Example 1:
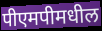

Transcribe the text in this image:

पीएमपीमधील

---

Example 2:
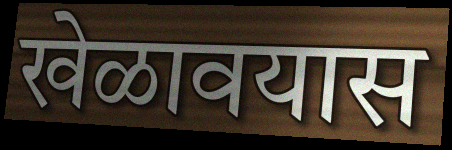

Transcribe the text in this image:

खेळावयास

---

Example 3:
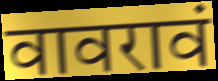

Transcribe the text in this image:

वावरावं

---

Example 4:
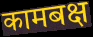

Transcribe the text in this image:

कामबक्ष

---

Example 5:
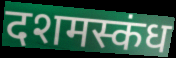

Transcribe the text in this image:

दशमस्कंध